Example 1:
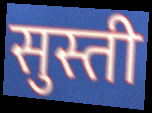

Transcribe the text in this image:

सुस्‍ती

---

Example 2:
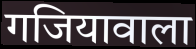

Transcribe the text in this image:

गजियावाला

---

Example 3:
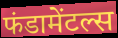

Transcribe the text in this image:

फंडामेंटल्स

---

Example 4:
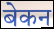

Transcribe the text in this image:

बेकन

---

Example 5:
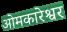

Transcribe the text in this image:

ओमकारेश्वर